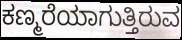
ಕಣ್ಮರೆಯಾಗುತ್ತಿರುವ